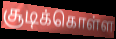
சூடிக்கொள்ள